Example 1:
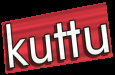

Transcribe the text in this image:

kuttu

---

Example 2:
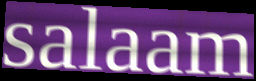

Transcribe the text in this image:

salaam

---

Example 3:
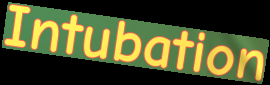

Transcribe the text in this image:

Intubation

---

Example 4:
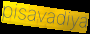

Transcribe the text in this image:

pisavadiya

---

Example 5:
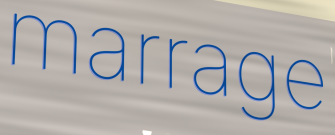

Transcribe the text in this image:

marrage